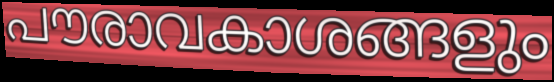
പൗരാവകാശങ്ങളും